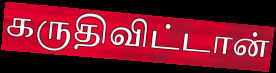
கருதிவிட்டான்